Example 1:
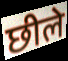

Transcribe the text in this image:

छीले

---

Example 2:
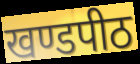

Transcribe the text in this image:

खण्डपीठ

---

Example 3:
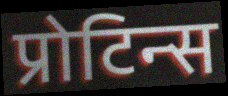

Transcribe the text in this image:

प्रोटिन्स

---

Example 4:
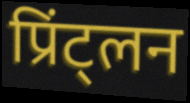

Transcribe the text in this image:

प्रिंट्लन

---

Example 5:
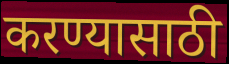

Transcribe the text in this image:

करण्यासाठी